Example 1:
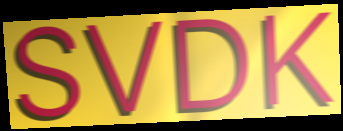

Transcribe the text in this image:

SVDK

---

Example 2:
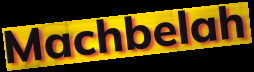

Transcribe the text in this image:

Machbelah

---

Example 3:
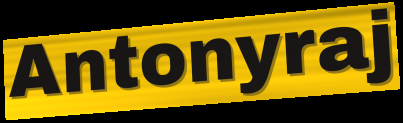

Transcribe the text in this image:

Antonyraj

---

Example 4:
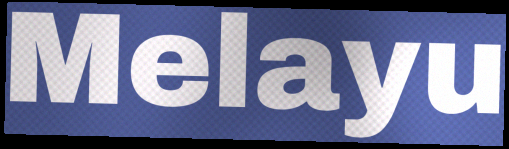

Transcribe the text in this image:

Melayu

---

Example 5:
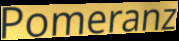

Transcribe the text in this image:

Pomeranz